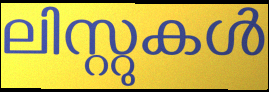
ലിസ്റ്റുകൾ